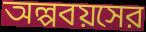
অল্পবয়সের